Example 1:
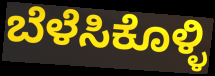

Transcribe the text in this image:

ಬೆಳೆಸಿಕೊಳ್ಳಿ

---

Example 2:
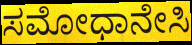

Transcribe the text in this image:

ಸಮೋಧಾನೇಸಿ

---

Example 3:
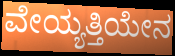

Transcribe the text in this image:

ವೇಯ್ಯತ್ತಿಯೇನ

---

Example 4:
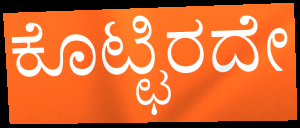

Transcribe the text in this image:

ಕೊಟ್ಟಿರದೇ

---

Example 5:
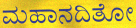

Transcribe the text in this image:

ಮಹಾನದಿತೋ